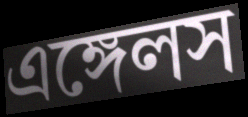
এঙ্গেলস